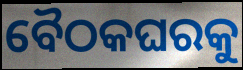
ବୈଠକଘରକୁ